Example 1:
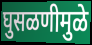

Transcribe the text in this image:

घुसळणीमुळे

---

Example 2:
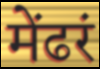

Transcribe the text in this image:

मेंढरं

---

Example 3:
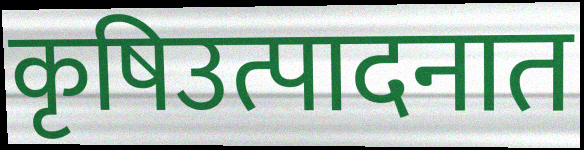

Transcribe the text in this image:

कृषिउत्पादनात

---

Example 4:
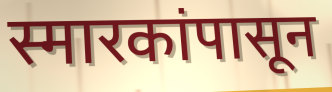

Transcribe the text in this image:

स्मारकांपासून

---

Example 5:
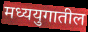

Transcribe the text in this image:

मध्ययुगातील